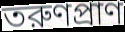
তরুণপ্রাণ